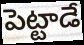
పెట్టాడే